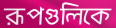
রূপগুলিকে